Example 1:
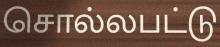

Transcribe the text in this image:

சொல்லபட்டு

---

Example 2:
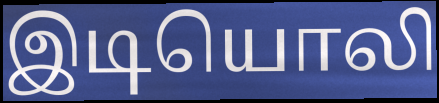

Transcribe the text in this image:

இடியொலி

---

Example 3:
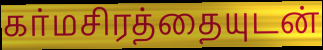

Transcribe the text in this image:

கர்மசிரத்தையுடன்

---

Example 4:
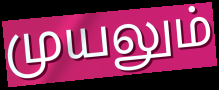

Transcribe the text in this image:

முயலும்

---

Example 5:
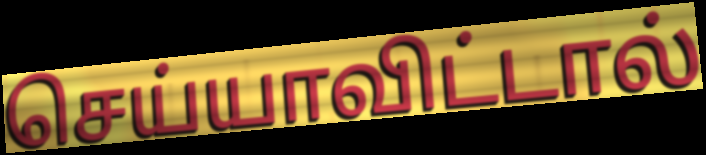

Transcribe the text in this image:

செய்யாவிட்டால்